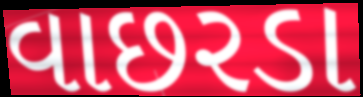
વાછરડા